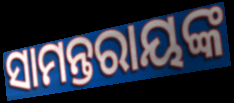
ସାମନ୍ତରାୟଙ୍କ